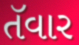
તૅવાર